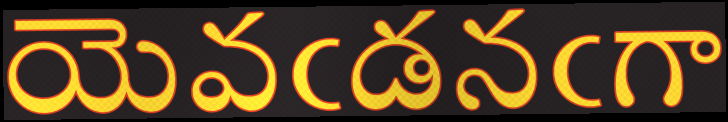
యెవఁడనఁగా